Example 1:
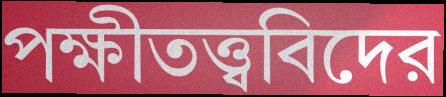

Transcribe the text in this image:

পক্ষীতত্ত্ববিদের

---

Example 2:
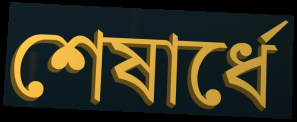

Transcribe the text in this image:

শেষার্ধে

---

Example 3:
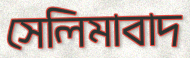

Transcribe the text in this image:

সেলিমাবাদ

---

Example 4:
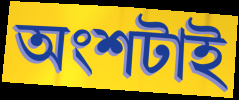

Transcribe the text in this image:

অংশটাই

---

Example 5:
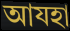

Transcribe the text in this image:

আযহা